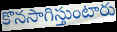
కొనసాగిస్తుంటారు